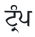
ਟ੍ਰੰਪ